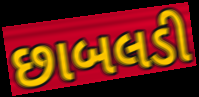
છાબલડી